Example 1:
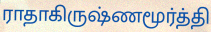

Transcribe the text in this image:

ராதாகிருஷ்ணமூர்த்தி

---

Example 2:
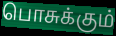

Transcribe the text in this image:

பொசுக்கும்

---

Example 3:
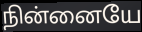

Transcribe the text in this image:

நின்னையே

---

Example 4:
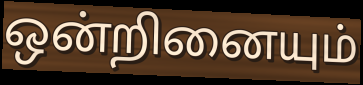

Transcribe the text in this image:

ஒன்றினையும்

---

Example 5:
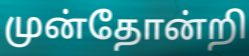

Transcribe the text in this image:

முன்தோன்றி